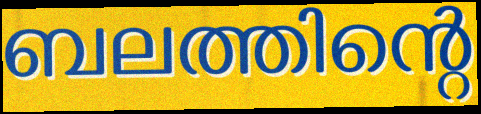
ബലത്തിന്റെ